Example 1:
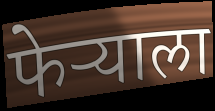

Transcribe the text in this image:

फेऱ्याला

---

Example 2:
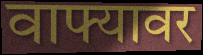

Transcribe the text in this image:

वाफ्यावर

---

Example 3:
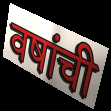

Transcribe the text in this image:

वषांची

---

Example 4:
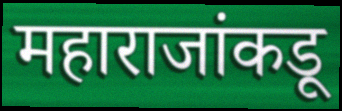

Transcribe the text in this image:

महाराजांकडू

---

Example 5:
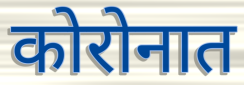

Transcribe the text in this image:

कोरोनात